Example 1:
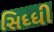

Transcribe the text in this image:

સિધ્ધી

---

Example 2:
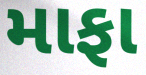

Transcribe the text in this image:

માફા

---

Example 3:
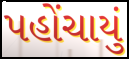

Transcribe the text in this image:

પહોંચાયું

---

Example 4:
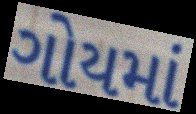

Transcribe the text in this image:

ગોયમાં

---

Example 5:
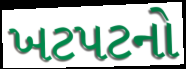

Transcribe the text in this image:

ખટપટનો